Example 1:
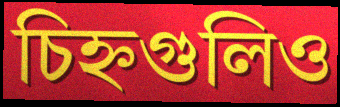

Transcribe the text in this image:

চিহ্নগুলিও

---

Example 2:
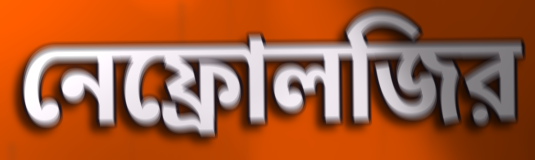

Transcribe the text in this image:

নেফ্রোলজির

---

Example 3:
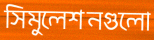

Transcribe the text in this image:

সিমুলেশনগুলো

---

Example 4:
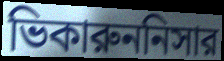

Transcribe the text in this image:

ভিকারুননিসার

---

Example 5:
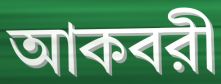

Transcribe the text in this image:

আকবরী